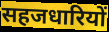
सहजधारियों